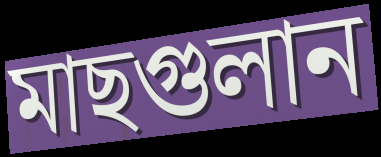
মাছগুলান